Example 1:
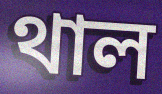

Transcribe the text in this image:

থাল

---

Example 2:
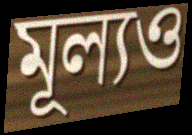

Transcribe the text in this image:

মূল্যও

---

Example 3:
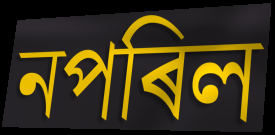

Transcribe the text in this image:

নপৰিল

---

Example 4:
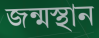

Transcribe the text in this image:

জন্মস্থান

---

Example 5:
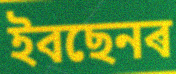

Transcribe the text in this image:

ইবছেনৰ